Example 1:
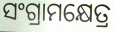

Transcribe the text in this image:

ସଂଗ୍ରାମକ୍ଷେତ୍ର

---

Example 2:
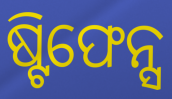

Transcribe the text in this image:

ଷ୍ଟିଫେନ୍ସ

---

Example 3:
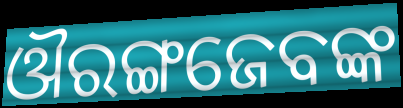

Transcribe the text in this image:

ଔରଙ୍ଗଜେବଙ୍କ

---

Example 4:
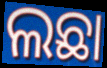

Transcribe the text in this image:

ଲଛା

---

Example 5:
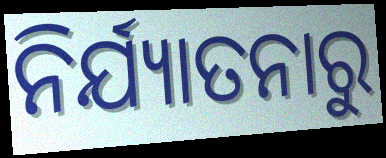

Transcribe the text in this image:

ନିର୍ଯ୍ୟାତନାରୁ